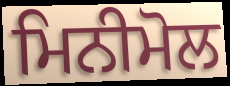
ਮਿਨੀਮੋਲ